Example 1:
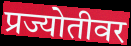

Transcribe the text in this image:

प्रज्योतीवर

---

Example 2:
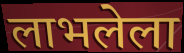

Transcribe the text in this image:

लाभलेला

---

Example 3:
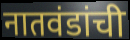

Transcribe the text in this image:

नातवंडांची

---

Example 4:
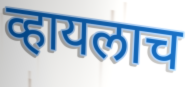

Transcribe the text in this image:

व्हायलाच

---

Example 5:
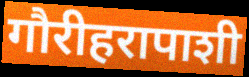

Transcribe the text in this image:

गौरीहरापाशी